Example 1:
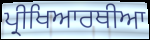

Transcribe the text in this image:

ਪ੍ਰੀਖਿਆਰਥੀਆ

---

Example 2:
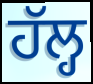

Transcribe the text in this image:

ਹੱਲ੍ਹ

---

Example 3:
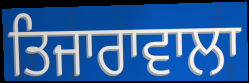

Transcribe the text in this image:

ਤਿਜਾਰਾਵਾਲਾ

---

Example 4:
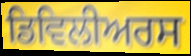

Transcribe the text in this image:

ਡਿਵਿਲੀਅਰਸ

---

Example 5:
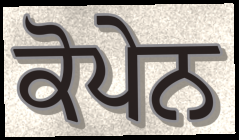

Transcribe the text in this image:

ਕੋਪੇਨ